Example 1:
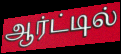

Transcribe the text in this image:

ஆர்ட்டில்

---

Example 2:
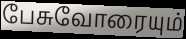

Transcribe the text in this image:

பேசுவோரையும்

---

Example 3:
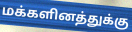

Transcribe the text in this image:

மக்களினத்துக்கு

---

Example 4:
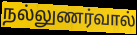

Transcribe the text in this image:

நல்லுணர்வால்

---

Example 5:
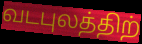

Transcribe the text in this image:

வடபுலத்திற்